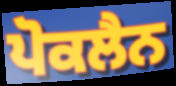
ਪੋਕਲੈਨ